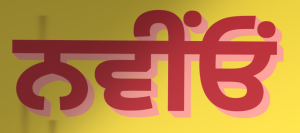
ਨਵੀਂਓਂ